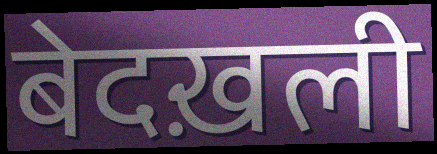
बेदख़ली